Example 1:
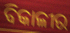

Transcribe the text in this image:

ବିକାଳୀର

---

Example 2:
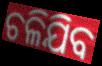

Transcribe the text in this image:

ଚଳିଯିବ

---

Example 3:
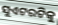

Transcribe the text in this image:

ସୁଏଟରଟିକୁ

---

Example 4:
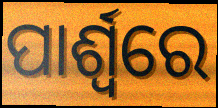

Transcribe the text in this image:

ପାର୍ଶ୍ଵରେ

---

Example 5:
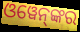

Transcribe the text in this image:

ଓୱେନ୍‌ଙ୍କର